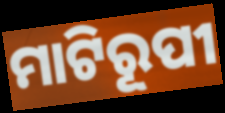
ମାଟିରୂପୀ